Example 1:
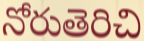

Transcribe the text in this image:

నోరుతెరిచి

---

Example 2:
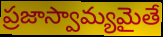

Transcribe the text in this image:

ప్రజాస్వామ్యమైతే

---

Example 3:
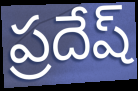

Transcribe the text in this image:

ప్రదేష్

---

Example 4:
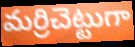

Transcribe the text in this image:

మర్రిచెట్టుగా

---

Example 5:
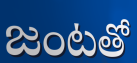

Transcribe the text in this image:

జంటతో